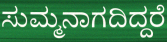
ಸುಮ್ಮನಾಗದಿದ್ದರೆ